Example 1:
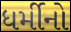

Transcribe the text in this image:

ધર્મીનો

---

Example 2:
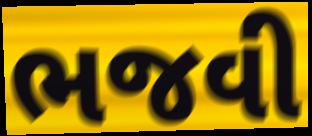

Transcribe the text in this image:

ભજવી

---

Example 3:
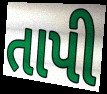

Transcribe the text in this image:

તાપી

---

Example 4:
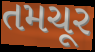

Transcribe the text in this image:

તમચૂર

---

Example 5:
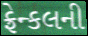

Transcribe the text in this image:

ફ્રેન્કલની